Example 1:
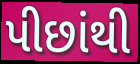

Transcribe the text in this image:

પીછાંથી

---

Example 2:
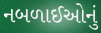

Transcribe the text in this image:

નબળાઈઓનું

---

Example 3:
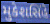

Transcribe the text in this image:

મુકેશસિંહે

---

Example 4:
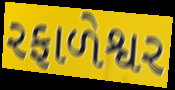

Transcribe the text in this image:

રફાળેશ્વર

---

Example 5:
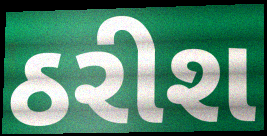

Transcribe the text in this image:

ઠરીશ